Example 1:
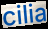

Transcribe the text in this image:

cilia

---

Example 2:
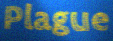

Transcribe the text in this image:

Plague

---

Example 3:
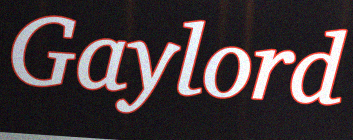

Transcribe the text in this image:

Gaylord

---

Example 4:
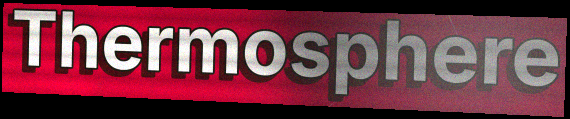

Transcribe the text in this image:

Thermosphere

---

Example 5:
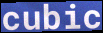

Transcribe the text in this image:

cubic